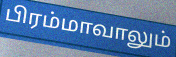
பிரம்மாவாலும்